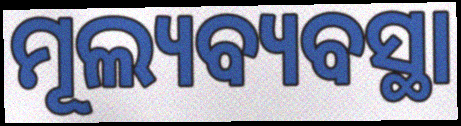
ମୂଲ୍ୟବ୍ୟବସ୍ଥା